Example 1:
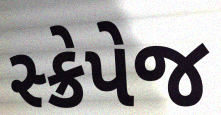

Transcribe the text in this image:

સ્ક્રેપેજ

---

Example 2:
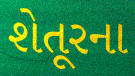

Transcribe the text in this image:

શેતૂરના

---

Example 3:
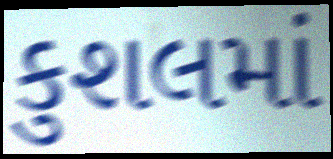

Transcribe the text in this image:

કુશલમાં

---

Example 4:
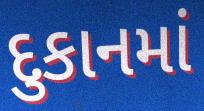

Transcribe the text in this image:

દુકાનમાં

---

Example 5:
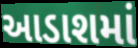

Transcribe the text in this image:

આડાશમાં